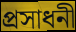
প্রসাধনী